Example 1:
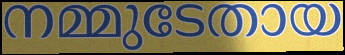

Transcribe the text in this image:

നമ്മുടേതായ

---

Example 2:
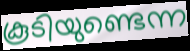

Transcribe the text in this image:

കൂടിയുണ്ടെന്ന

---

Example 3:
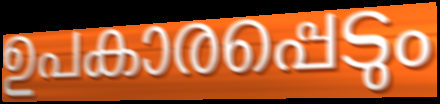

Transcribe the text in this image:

ഉപകാരപ്പെടും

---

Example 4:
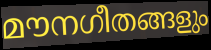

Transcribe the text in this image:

മൗനഗീതങ്ങളും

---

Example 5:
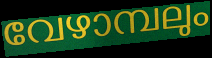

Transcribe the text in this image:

വേഴാമ്പലും